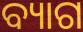
ବ୍ୟାଗ